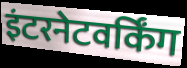
इंटरनेटवर्किंग